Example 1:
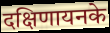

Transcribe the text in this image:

दक्षिणायनके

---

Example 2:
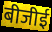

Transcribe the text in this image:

बीजीई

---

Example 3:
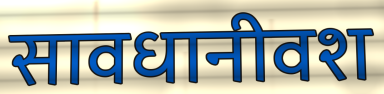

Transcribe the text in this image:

सावधानीवश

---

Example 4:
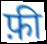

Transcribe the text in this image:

फ़ी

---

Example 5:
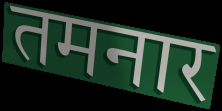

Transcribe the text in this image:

तमनार